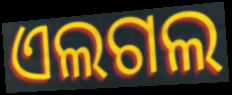
ଏଲଗଲ